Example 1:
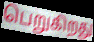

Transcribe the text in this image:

பெறுகிறது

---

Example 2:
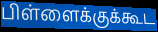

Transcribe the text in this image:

பிள்ளைக்குக்கூட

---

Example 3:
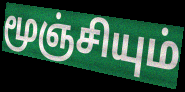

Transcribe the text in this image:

மூஞ்சியும்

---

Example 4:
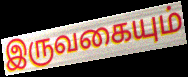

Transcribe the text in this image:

இருவகையும்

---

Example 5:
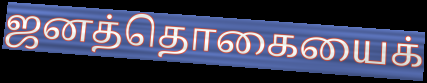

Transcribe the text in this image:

ஜனத்தொகையைக்